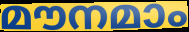
മൗനമാം